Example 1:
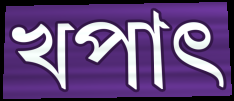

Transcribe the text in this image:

খপাৎ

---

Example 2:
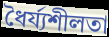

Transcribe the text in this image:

ধৈর্য্যশীলতা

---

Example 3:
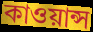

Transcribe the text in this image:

কাওয়ান্স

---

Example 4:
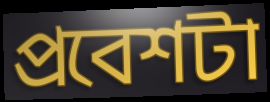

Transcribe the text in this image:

প্রবেশটা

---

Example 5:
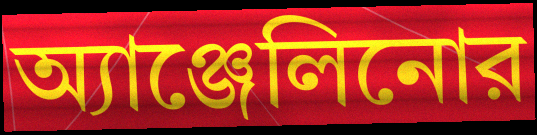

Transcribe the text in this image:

অ্যাঞ্জেলিনোর